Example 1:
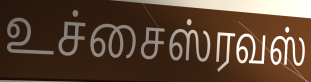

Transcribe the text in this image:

உச்சைஸ்ரவஸ்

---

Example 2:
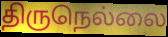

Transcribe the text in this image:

திருநெல்லை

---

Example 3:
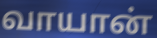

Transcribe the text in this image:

வாயான்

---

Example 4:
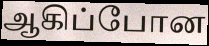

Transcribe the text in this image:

ஆகிப்போன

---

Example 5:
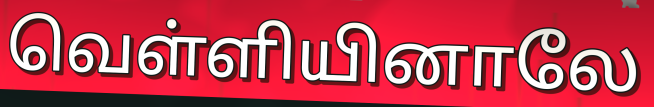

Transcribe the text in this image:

வெள்ளியினாலே